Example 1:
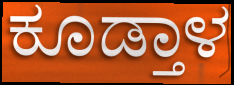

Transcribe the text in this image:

ಕೂಡ್ತಾಳ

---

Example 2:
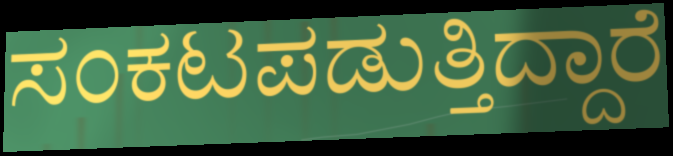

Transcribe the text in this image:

ಸಂಕಟಪಡುತ್ತಿದ್ದಾರೆ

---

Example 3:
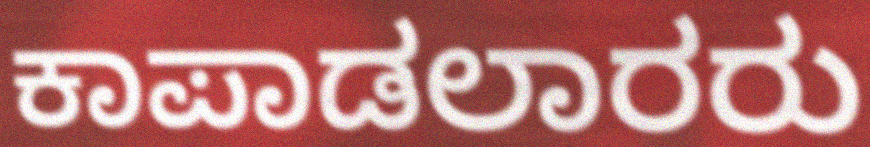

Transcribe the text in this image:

ಕಾಪಾಡಲಾರರು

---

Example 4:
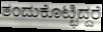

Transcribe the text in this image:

ತಂದುಕೊಟ್ಟಿದ್ದರೆ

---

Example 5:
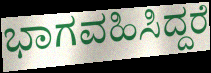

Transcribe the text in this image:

ಭಾಗವಹಿಸಿದ್ದರೆ